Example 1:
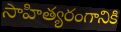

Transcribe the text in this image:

సాహిత్యరంగానికి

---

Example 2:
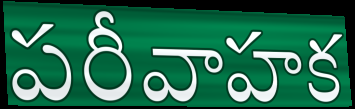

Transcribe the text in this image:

పరీవాహక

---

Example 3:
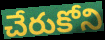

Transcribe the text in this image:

చేరుకోని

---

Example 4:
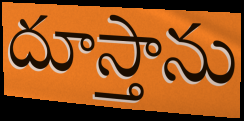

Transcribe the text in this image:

దూస్తాను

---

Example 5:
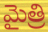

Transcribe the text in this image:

మైత్రి